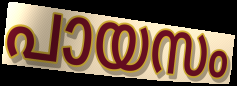
പായസം